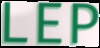
LEP